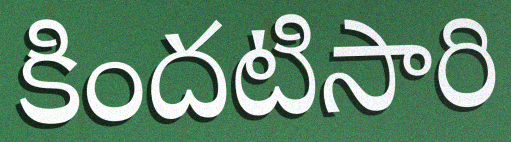
కిందటిసారి